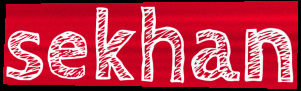
sekhan